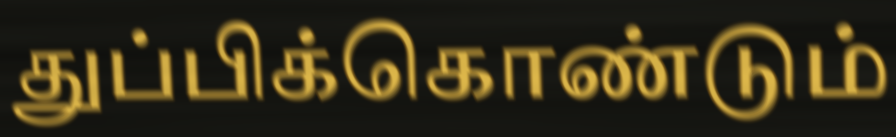
துப்பிக்கொண்டும்